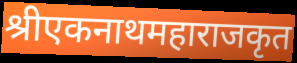
श्रीएकनाथमहाराजकृत